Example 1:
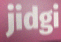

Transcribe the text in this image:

jidgi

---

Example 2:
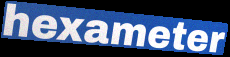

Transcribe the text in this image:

hexameter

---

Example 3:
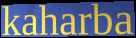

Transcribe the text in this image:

kaharba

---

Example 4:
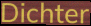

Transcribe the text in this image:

Dichter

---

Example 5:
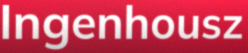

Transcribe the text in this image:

Ingenhousz